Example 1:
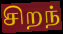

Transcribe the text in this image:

சிறந்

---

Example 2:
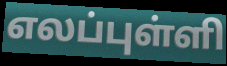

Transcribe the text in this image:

எலப்புள்ளி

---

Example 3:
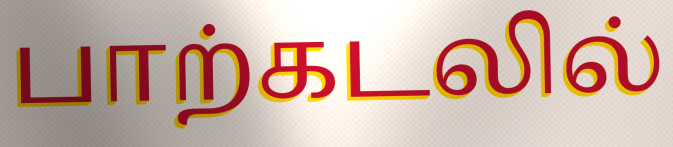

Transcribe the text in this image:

பாற்கடலில்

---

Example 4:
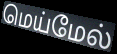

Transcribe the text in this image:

மெய்மேல்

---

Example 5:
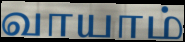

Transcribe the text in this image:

வாயாம்